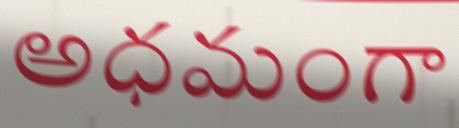
అధమంగా